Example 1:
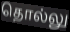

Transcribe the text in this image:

தொல்லு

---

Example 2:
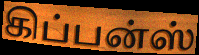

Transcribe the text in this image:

கிப்பன்ஸ்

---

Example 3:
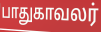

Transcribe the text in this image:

பாதுகாவலர்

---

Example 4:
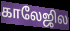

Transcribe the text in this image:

காலேஜில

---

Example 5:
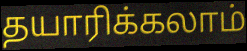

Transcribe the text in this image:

தயாரிக்கலாம்